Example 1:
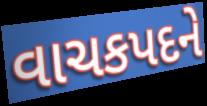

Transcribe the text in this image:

વાચકપદને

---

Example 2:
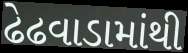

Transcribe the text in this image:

ઢેઢવાડામાંથી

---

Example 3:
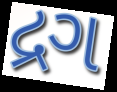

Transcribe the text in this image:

દ્રગ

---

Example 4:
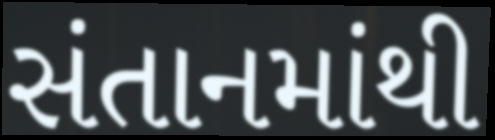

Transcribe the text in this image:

સંતાનમાંથી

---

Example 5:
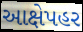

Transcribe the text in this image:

આક્ષેપહર